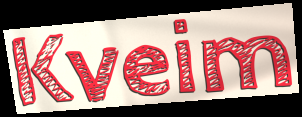
Kveim